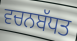
ਵਚਨਬੱਧਤ